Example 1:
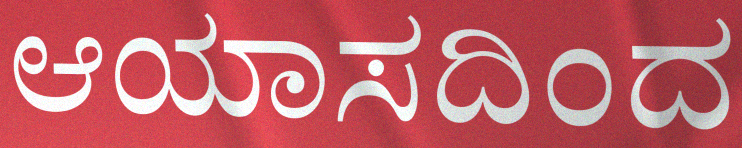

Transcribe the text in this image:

ಆಯಾಸದಿಂದ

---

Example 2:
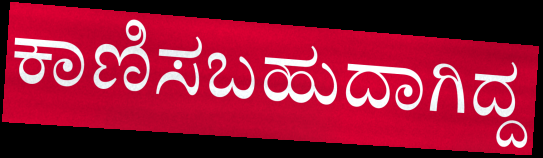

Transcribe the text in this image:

ಕಾಣಿಸಬಹುದಾಗಿದ್ದ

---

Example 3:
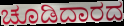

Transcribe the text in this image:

ಚೂಡಿದಾರದ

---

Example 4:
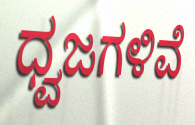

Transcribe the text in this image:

ಧ್ವಜಗಳಿವೆ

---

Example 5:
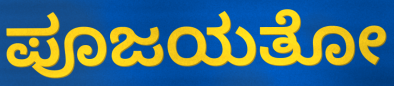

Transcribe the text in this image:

ಪೂಜಯತೋ